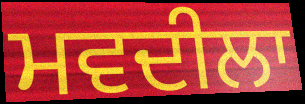
ਮਵਦੀਲਾ